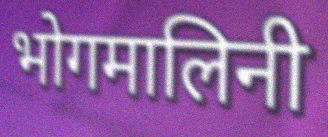
भोगमालिनी